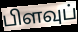
பிளவுப்